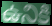
ఉనికి